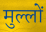
मुल्लों